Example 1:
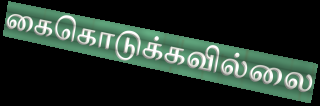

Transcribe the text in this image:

கைகொடுக்கவில்லை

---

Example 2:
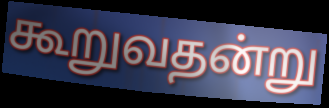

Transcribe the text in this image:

கூறுவதன்று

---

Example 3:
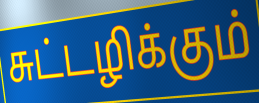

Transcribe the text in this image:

சுட்டழிக்கும்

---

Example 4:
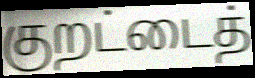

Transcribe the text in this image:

குறட்டைத்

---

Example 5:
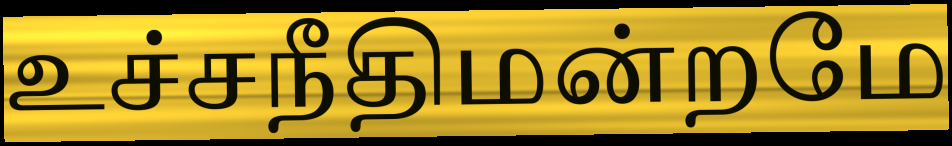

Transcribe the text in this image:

உச்சநீதிமன்றமே